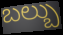
బల్బు